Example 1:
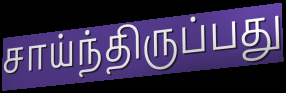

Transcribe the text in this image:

சாய்ந்திருப்பது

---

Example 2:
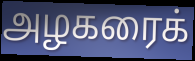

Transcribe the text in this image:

அழகரைக்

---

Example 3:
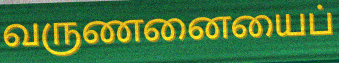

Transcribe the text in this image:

வருணனையைப்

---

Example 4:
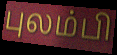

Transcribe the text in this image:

புலம்பி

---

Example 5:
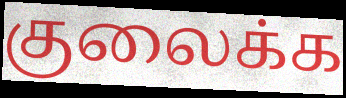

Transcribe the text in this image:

குலைக்க